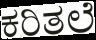
ಕರಿತಲೆ